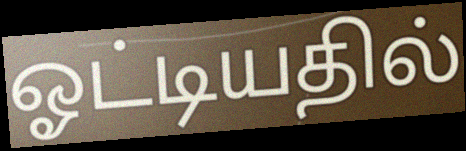
ஓட்டியதில்